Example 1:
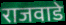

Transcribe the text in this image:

राजवाडे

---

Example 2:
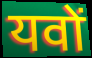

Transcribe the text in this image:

यवों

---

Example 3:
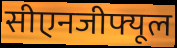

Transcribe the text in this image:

सीएनजीफ्यूल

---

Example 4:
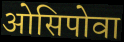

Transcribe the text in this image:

ओसिपोवा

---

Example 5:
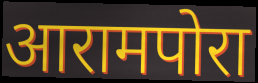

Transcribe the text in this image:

आरामपोरा